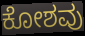
ಕೋಶವು